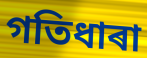
গতিধাৰা